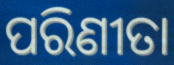
ପରିଣୀତା